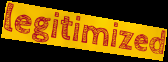
legitimized